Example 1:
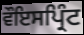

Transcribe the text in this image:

ਵੌਇਸਪ੍ਰਿੰਟ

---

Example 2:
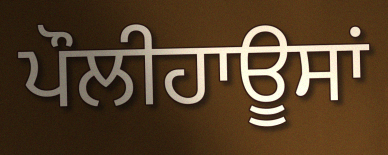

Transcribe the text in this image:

ਪੌਲੀਹਾਊਸਾਂ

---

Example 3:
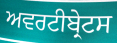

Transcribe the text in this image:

ਅਵਰਟੀਬ੍ਰੇਟਸ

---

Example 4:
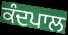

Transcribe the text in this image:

ਕੰਦਪਾਲ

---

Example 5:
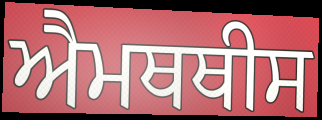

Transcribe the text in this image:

ਐਮਥਥੀਸ